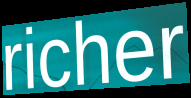
richer